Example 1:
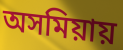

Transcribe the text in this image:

অসমিয়ায়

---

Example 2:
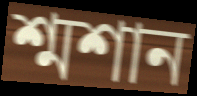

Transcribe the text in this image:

শ্মশান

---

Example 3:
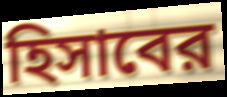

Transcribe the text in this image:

হিসাবের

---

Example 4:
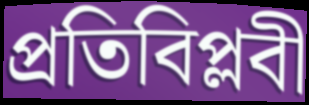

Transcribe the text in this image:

প্রতিবিপ্লবী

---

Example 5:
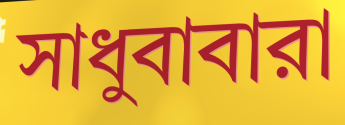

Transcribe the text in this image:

সাধুবাবারা